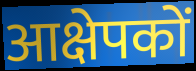
आक्षेपकों